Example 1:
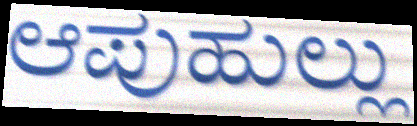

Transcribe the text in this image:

ಆಪುಹುಲ್ಲು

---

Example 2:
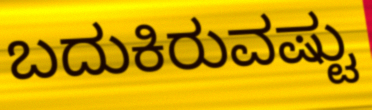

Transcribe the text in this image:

ಬದುಕಿರುವಷ್ಟು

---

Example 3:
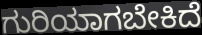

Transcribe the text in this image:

ಗುರಿಯಾಗಬೇಕಿದೆ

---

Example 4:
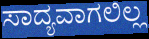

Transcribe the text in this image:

ಸಾದ್ಯವಾಗಲಿಲ್ಲ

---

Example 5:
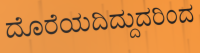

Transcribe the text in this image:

ದೊರೆಯದಿದ್ದುದರಿಂದ